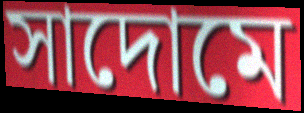
সাদোমে